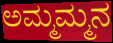
ಅಮ್ಮಮ್ಮನ